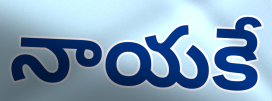
నాయకే